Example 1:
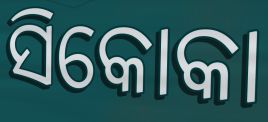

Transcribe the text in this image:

ସିକୋକା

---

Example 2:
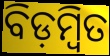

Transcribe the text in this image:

ବିଡ଼ମ୍ଵିତ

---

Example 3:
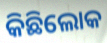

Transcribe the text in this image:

କିଛିଲୋକ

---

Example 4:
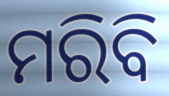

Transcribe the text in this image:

ମରିବି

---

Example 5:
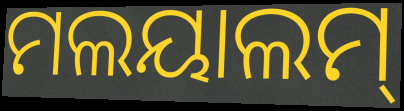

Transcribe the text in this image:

ମଲୟାଲମ୍